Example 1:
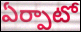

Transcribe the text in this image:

ఏర్పాటో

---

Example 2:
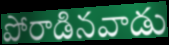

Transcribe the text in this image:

పోరాడినవాడు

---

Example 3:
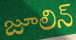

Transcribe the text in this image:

జూలిన్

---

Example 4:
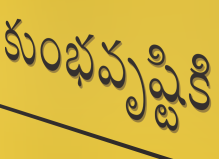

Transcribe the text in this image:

కుంభవృష్టికి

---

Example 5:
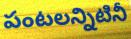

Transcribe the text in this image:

పంటలన్నిటినీ